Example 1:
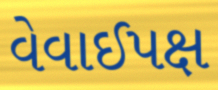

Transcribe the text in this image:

વેવાઈપક્ષ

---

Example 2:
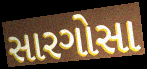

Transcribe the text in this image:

સારગોસા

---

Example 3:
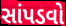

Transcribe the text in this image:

સાંપડવો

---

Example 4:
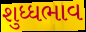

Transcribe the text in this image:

શુધ્ધભાવ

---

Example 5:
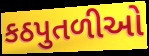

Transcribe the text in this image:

કઠપુતળીઓ